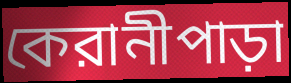
কেরানীপাড়া